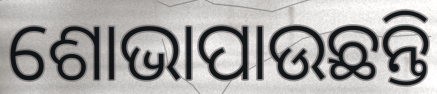
ଶୋଭାପାଉଛନ୍ତି